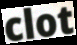
clot